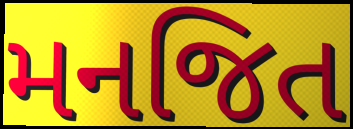
મનજિત